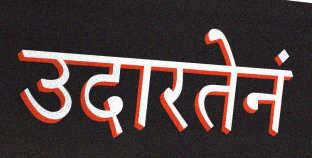
उदारतेनं